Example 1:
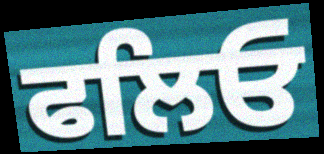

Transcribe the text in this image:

ਫਲਿਓ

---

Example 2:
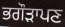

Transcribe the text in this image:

ਭਗੌੜਾਪਣ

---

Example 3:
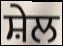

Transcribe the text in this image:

ਸ਼ੇਲ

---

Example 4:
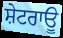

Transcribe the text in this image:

ਸ਼ੇਟਰਾਊ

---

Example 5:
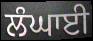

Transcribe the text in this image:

ਲੰਘਾਈ